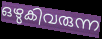
ഒഴുകിവരുന്ന